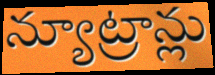
న్యూట్రాన్లు